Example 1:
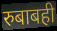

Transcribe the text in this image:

रुबाबही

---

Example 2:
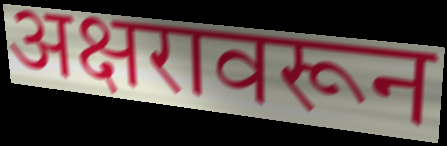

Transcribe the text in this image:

अक्षरावरून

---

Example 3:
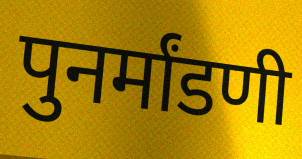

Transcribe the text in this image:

पुनर्मांडणी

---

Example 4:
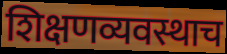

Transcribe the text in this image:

शिक्षणव्यवस्थाच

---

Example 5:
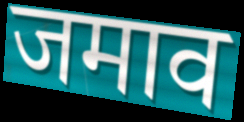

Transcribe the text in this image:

जमाव